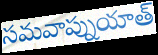
సమవాప్నుయాత్